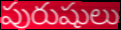
పురుషులు